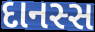
દાનસ્સ